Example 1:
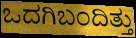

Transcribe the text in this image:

ಒದಗಿಬಂದಿತ್ತು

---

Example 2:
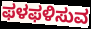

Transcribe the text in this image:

ಫಳಫಳಿಸುವ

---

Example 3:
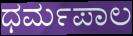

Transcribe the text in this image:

ಧರ್ಮಪಾಲ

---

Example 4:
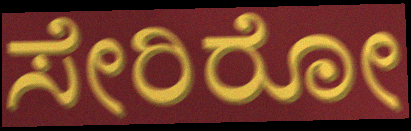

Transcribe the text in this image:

ಸೇರಿರೋ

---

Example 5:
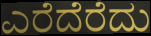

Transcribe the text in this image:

ಎರೆದೆರೆದು